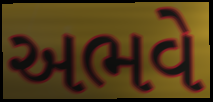
અભવે